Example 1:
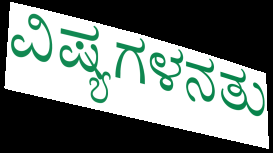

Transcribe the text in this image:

ವಿಷ್ಯಗಳನತು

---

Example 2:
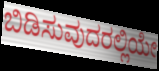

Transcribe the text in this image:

ಬಿಡಿಸುವುದರಲ್ಲಿಯೇ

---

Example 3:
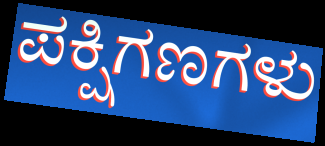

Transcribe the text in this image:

ಪಕ್ಷಿಗಣಗಳು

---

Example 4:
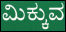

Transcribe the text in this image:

ಮಿಕ್ಕುವ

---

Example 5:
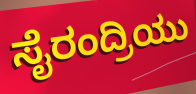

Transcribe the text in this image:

ಸೈರಂದ್ರಿಯು